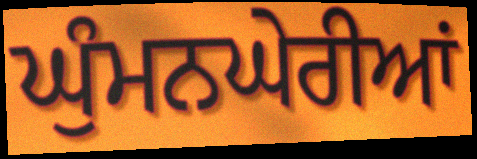
ਘੁੰਮਨਘੇਰੀਆਂ